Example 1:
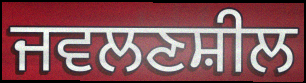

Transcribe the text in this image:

ਜਵਲਣਸ਼ੀਲ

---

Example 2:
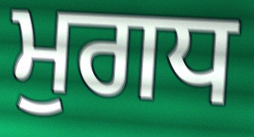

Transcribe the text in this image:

ਮੁਗਧ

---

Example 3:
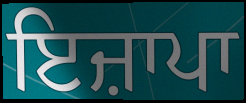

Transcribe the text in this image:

ਇਜ਼ਾਪਾ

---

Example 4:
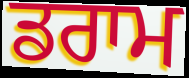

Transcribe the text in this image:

ਡਰਾਮ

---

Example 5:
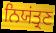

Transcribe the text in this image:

ਨਿਯਂਤ੍ਰਣ